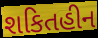
શકિતહીન